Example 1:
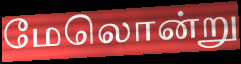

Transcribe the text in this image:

மேலொன்று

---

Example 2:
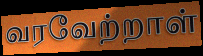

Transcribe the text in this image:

வரவேற்றாள்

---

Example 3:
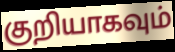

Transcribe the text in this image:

குறியாகவும்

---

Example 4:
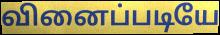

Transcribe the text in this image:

வினைப்படியே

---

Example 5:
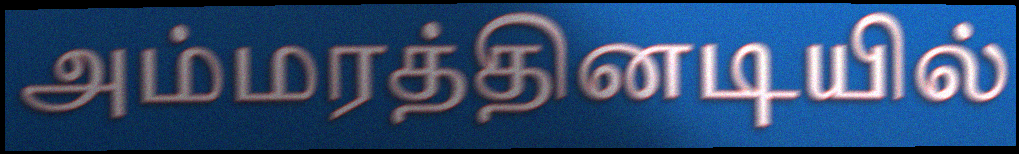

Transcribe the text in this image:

அம்மரத்தினடியில்